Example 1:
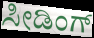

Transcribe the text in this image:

ಸೀಡಿಂಗ್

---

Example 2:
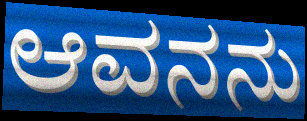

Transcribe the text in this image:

ಆವನನು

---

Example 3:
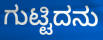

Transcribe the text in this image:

ಗುಟ್ಟಿದನು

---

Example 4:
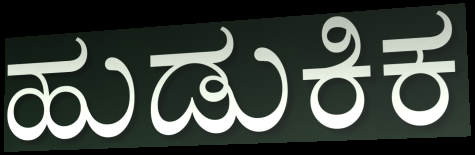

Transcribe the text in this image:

ಹುಡುಕಿಕ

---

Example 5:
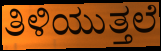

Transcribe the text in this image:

ತಿಳಿಯುತ್ತಲೆ